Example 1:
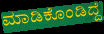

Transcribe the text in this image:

ಮಾಡಿಕೊಂಡಿದ್ದೆ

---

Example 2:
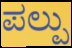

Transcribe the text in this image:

ಪಲ್ಪು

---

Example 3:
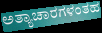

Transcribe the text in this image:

ಅತ್ಯಾಚಾರಗಳಂತಹ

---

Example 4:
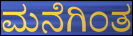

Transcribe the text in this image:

ಮನೆಗಿಂತ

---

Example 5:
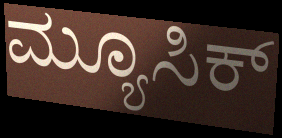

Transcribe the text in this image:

ಮ್ಯೂಸಿಕ್